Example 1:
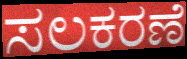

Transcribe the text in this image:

ಸಲಕರಣೆ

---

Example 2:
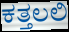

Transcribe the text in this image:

ಕತ್ತಲಲಿ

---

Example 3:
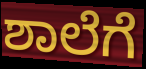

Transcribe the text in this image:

ಶಾಲೆಗೆ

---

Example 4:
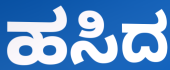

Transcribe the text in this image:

ಹಸಿದ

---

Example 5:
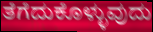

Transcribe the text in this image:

ತೆಗೆದುಕೊಳ್ಳುವುದು